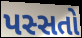
પસ્સતો